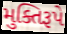
મુક્તિરૂપે